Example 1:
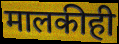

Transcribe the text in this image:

मालकीही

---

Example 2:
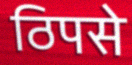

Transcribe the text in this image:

ठिपसे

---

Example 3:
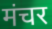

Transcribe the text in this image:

मंचर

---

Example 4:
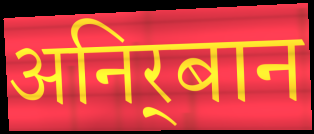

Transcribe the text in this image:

अनिर्बान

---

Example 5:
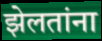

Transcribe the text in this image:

झेलतांना